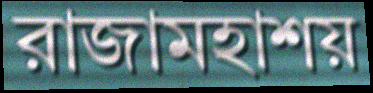
রাজামহাশয়